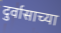
दुर्वासाच्या